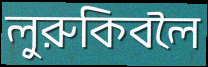
লুৰুকিবলৈ